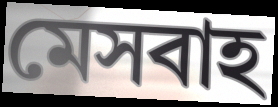
মেসবাহ